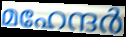
മഹേന്ദർ